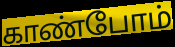
காண்போம்